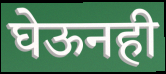
घेऊनही